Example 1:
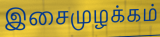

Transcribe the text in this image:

இசைமுழக்கம்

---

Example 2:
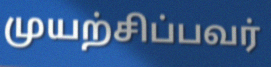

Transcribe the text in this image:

முயற்சிப்பவர்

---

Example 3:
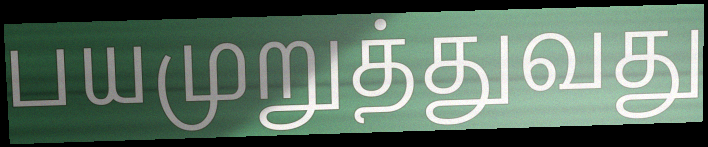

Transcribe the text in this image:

பயமுறுத்துவது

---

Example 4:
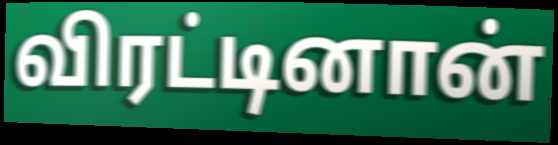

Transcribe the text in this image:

விரட்டினான்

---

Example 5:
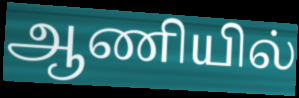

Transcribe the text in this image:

ஆணியில்